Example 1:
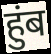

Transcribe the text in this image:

हुंब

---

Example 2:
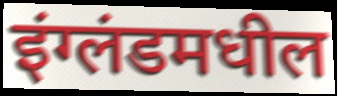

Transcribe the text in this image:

इंग्‍लंडमधील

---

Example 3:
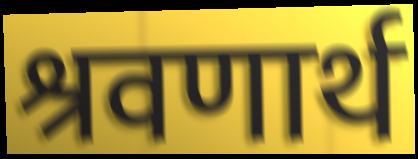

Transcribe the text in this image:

श्रवणार्थ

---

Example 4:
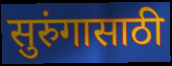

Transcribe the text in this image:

सुरुंगासाठी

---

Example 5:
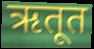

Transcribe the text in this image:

ऋतूत